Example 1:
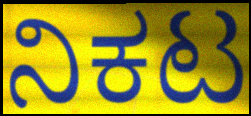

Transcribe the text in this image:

ನಿಕಟ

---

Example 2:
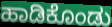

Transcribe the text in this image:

ಹಾಡಿಕೊಂಡು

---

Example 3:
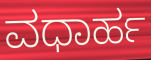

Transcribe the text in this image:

ವಧಾರ್ಹ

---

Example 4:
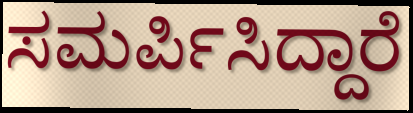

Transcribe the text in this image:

ಸಮರ್ಪಿಸಿದ್ದಾರೆ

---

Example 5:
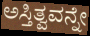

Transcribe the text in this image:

ಅಸ್ತಿತ್ವವನ್ನೇ